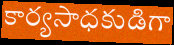
కార్యసాధకుడిగా